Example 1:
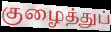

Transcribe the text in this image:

குழைத்துப்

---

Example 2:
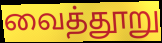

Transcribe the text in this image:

வைத்தூறு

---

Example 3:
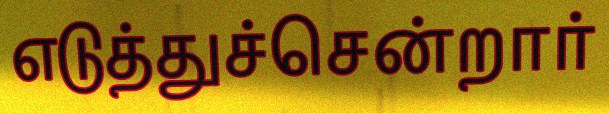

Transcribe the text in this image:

எடுத்துச்சென்றார்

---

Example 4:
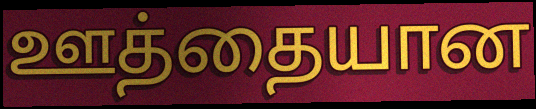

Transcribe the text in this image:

ஊத்தையான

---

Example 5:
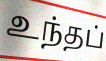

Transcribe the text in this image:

உந்தப்